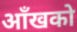
आँखको